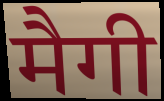
मैगी